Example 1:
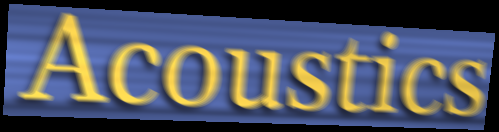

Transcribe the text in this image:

Acoustics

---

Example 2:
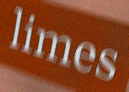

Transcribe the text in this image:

limes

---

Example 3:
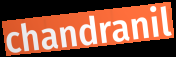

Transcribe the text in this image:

chandranil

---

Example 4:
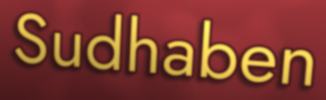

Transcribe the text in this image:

Sudhaben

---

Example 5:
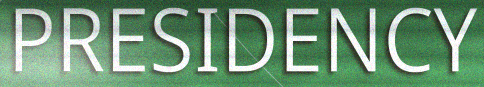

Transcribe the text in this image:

PRESIDENCY